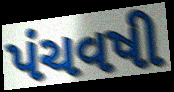
પંચવષી